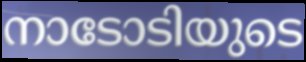
നാടോടിയുടെ